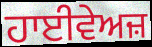
ਹਾਈਵੇਅਜ਼